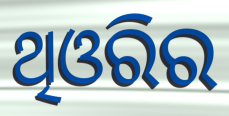
ଥିଓରିର